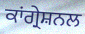
ਕਾਂਗ੍ਰੇਸ਼ਨਲ